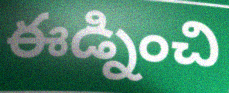
ఈడ్నించి